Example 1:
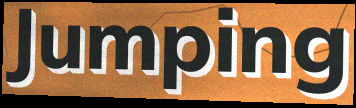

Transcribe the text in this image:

Jumping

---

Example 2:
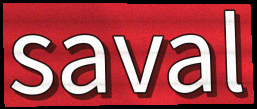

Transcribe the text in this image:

saval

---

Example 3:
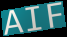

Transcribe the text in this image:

AIF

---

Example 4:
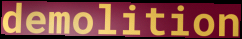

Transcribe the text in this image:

demolition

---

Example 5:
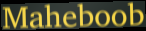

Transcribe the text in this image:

Maheboob